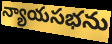
న్యాయసభను